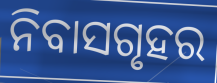
ନିବାସଗୃହର